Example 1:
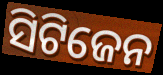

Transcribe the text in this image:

ସିଟିଜେନ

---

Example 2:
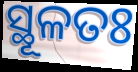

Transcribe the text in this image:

ସ୍ଥୂଳତଃ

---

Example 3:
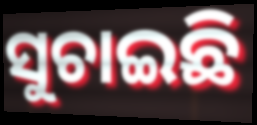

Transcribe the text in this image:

ସୁଚାଇଛି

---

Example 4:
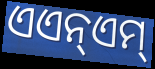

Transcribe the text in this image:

ଏଏନ୍ଏମ୍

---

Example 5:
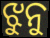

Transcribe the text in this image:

ଝୁନୁ